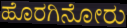
ಹೊರಗಿನೋರು